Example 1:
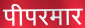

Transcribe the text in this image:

पीपरमार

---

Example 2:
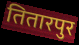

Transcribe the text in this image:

तितारपुर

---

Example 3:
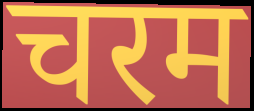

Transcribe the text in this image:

चरम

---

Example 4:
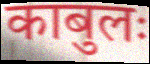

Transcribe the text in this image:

काबुलः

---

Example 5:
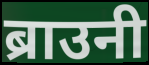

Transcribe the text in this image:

ब्राउनी